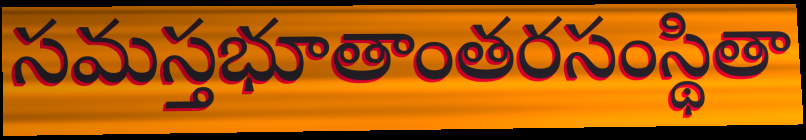
సమస్తభూతాంతరసంస్థితా